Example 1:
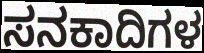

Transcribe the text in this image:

ಸನಕಾದಿಗಳ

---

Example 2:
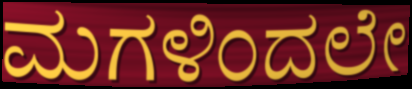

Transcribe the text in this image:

ಮಗಳಿಂದಲೇ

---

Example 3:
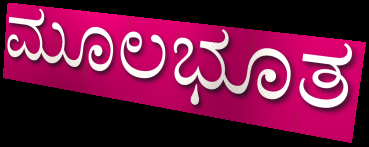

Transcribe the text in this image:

ಮೂಲಭೂತ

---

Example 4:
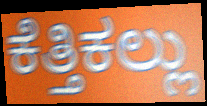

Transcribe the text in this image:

ಕೆತ್ತಿಕಲ್ಲು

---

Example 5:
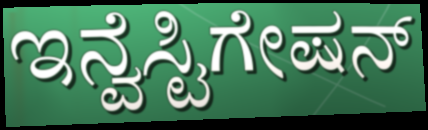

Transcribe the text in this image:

ಇನ್ವೆಸ್ಟಿಗೇಷನ್